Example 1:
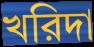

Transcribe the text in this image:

খরিদা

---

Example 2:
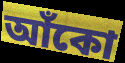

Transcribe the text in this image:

আঁকো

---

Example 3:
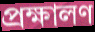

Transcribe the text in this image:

প্রক্ষালণ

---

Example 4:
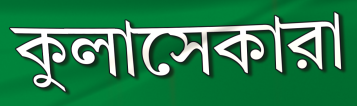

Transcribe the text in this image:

কুলাসেকারা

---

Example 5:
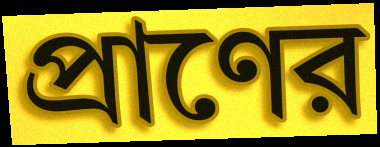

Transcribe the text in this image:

প্রাণের